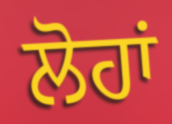
ਲੋਹਾਂ